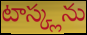
టాస్క్లను